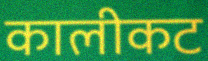
कालीकट